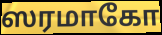
ஸரமாகோ